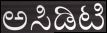
ಅಸಿಡಿಟಿ